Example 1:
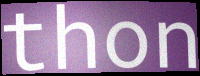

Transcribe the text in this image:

thon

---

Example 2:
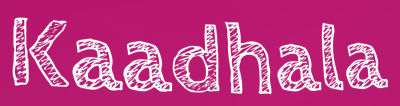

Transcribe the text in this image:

Kaadhala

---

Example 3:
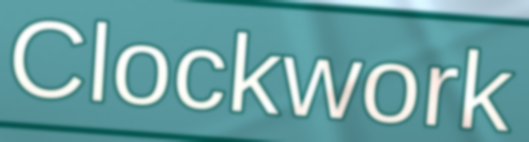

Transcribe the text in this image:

Clockwork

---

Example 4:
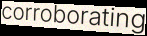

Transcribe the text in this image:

corroborating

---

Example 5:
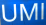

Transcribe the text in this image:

UMI